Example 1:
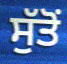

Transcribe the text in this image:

ਸੁੱਤੋਂ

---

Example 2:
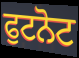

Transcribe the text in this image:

ਫੁਟਨੋਟ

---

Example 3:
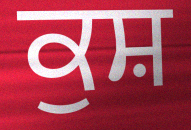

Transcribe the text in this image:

ਕੁਸ਼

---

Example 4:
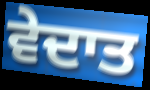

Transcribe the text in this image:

ਵੇਦਾਤ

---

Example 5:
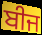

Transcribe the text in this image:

ਬੀਜ